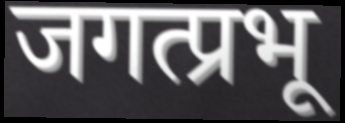
जगत्प्रभू